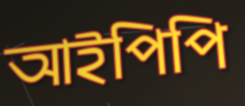
আইপিপি